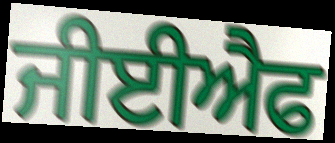
ਜੀਈਐਫ